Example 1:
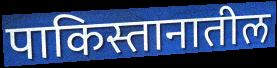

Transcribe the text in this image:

पाकिस्‍तानातील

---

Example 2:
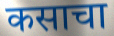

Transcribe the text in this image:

कसाचा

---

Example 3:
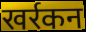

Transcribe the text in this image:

खर्रकन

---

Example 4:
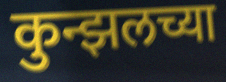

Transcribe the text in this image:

कुन्झलच्या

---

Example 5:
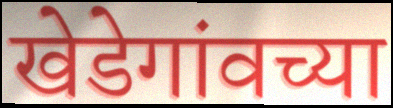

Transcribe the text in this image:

खेडेगांवच्या